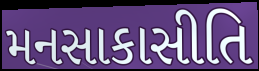
મનસાકાસીતિ